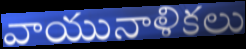
వాయునాళికలు